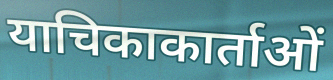
याचिकाकार्ताओं